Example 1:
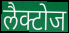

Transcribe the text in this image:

लैक्टोज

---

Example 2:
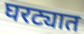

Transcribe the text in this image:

घरट्यात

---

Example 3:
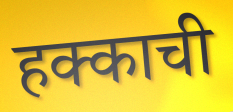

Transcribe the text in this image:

हक्काची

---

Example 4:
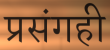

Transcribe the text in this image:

प्रसंगही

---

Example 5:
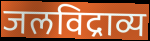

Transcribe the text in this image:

जलविद्राव्य